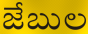
జేబుల